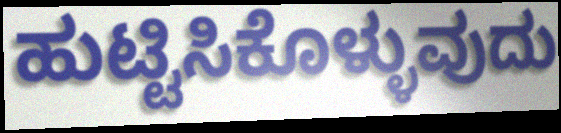
ಹುಟ್ಟಿಸಿಕೊಳ್ಳುವುದು